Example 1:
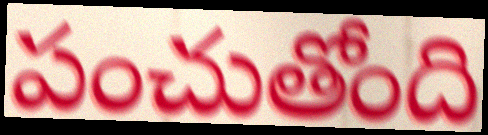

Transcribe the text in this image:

పంచుతోంది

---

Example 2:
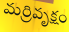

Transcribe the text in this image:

మర్రివృక్షం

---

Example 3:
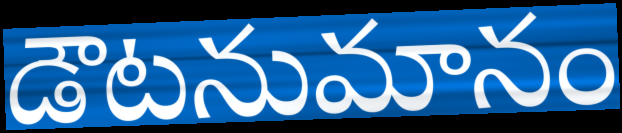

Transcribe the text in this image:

డౌటనుమానం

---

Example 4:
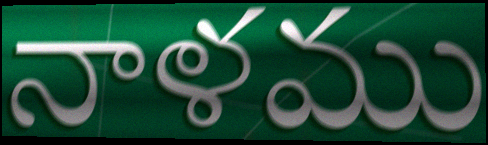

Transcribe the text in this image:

నాళము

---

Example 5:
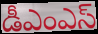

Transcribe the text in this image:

డీఎంఎస్